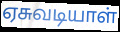
ஏசுவடியாள்